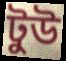
টুউ